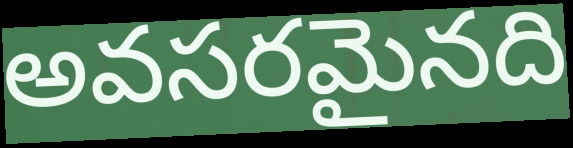
అవసరమైనది